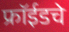
फ्रॉईडचे